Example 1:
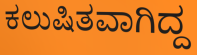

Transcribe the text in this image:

ಕಲುಷಿತವಾಗಿದ್ದ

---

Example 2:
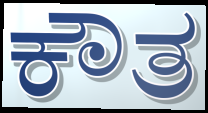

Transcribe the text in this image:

ಕೌತ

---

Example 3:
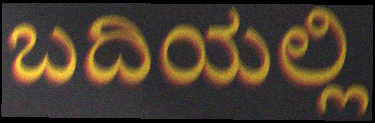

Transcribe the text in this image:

ಬದಿಯಲ್ಲಿ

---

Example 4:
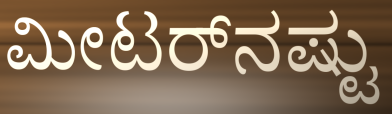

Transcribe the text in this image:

ಮೀಟರ್‌ನಷ್ಟು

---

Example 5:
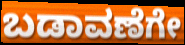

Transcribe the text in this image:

ಬಡಾವಣೆಗೇ